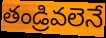
తండ్రివలెనే